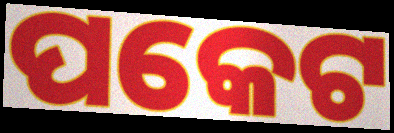
ପକେଟ